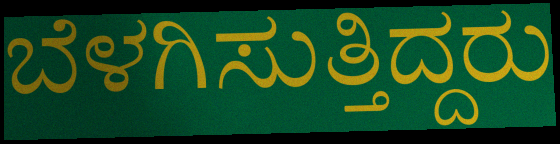
ಬೆಳಗಿಸುತ್ತಿದ್ದರು